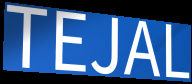
TEJAL